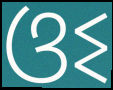
ଓଽ